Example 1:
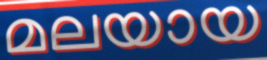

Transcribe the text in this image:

മലയായ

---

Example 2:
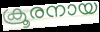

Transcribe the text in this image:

ക്രൂരനായ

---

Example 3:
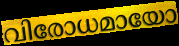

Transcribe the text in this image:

വിരോധമായോ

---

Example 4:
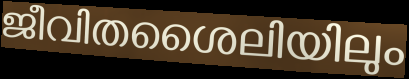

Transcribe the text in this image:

ജീവിതശൈലിയിലും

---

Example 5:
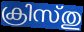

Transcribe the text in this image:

ക്രിസ്‌തു